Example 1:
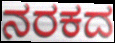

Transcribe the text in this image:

ನರಕದ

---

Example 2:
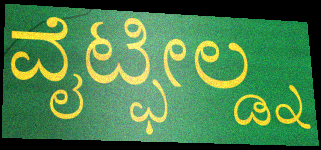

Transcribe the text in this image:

ವೈಟ್ಫೀಲ್ಡ್ನ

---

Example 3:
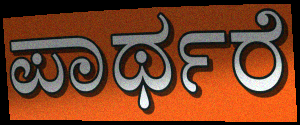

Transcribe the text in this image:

ಪಾರ್ಥರೆ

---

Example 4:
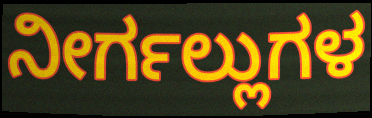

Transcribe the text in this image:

ನೀರ್ಗಲ್ಲುಗಳ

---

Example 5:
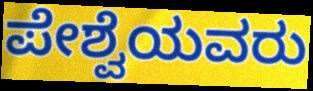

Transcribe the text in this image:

ಪೇಶ್ವೆಯವರು